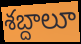
శబ్దాలూ